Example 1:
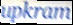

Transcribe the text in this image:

upkram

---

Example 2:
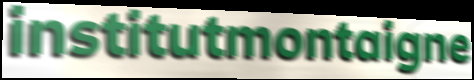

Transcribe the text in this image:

institutmontaigne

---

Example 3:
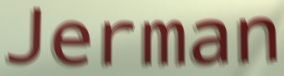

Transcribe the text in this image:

Jerman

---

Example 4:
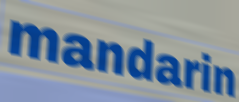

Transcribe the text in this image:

mandarin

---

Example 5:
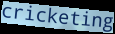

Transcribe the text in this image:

cricketing